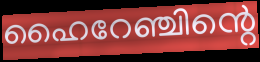
ഹൈറേഞ്ചിന്റെ